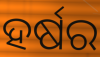
ହର୍ଷର